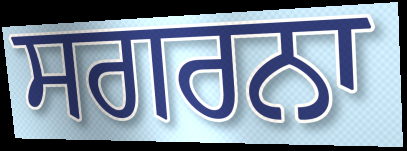
ਸਗਰਨਾ